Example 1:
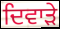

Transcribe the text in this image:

ਦਿਵਾੜੇ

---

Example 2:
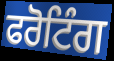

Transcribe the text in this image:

ਫਰੋਟਿੰਗ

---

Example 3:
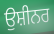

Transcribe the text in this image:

ਉਸ਼ੀਨਰ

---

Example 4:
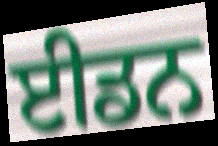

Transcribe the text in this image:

ਈਡਨ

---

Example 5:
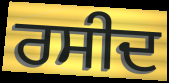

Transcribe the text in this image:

ਰਸੀਦ